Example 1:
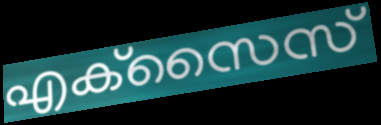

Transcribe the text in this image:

എക്‌സൈസ്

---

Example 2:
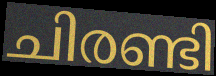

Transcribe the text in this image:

ചിരണ്ടി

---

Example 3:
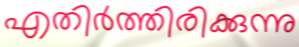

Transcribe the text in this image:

എതിർത്തിരിക്കുന്നു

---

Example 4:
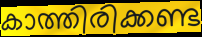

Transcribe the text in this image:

കാത്തിരിക്കണ്ട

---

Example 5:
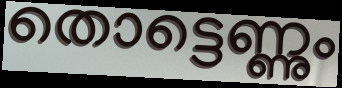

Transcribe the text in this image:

തൊട്ടെണ്ണും